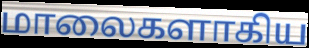
மாலைகளாகிய